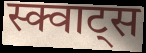
स्क्वाट्स